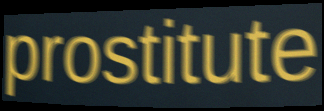
prostitute